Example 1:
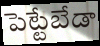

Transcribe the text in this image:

పెట్టేబేడా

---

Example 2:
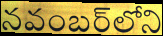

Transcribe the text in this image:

నవంబర్‌లోని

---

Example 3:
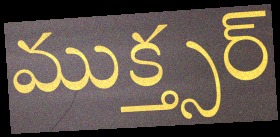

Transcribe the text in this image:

ముక్త్సర్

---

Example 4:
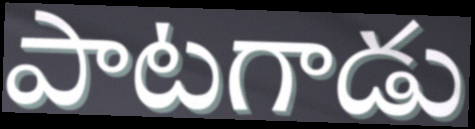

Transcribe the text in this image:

పాటగాడు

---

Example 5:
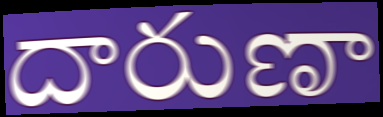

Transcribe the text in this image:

దారుణా